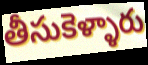
తీసుకెళ్ళారు